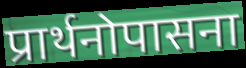
प्रार्थनोपासना